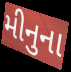
મીનુના